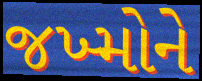
જખ્મોને